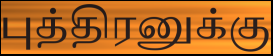
புத்திரனுக்கு